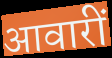
आवारीं